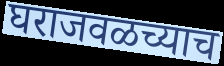
घराजवळच्याच